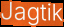
Jagtik